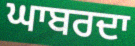
ਘਾਬਰਦਾ